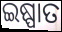
ଇଷ୍ପାତ